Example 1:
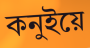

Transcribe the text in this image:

কনুইয়ে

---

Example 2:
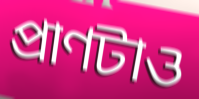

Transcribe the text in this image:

প্রাণটাও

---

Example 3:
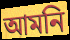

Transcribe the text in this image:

আমনি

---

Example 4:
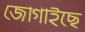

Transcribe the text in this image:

জোগাইছে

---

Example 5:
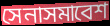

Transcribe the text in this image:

সেনাসমাবেশ